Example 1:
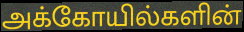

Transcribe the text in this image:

அக்கோயில்களின்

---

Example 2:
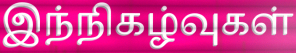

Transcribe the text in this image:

இந்நிகழ்வுகள்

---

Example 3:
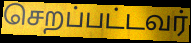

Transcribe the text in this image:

செறப்பட்டவர்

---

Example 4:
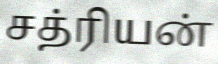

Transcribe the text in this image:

சத்ரியன்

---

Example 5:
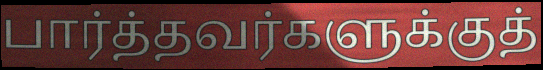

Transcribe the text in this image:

பார்த்தவர்களுக்குத்